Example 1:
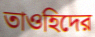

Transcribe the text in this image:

তাওহিদের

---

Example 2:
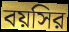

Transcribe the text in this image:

বয়সির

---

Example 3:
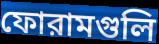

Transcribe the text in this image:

ফোরামগুলি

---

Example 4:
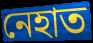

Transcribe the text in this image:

নেহাত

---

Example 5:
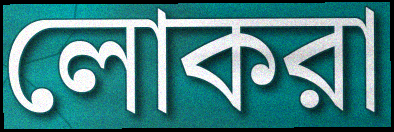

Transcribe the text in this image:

লোকরা